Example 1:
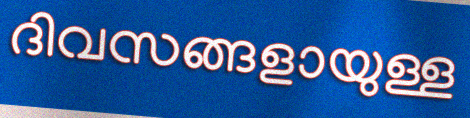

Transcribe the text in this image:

ദിവസങ്ങളായുള്ള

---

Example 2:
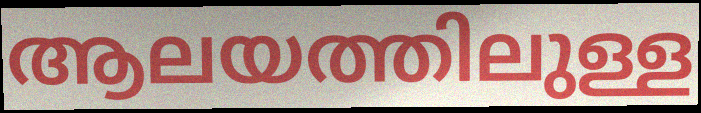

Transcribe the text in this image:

ആലയത്തിലുള്ള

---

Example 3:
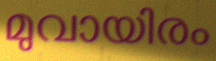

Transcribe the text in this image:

മുവായിരം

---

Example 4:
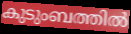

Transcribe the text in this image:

കുടുംബത്തിൽ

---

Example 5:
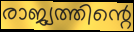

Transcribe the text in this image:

രാജ്യത്തിന്റെ